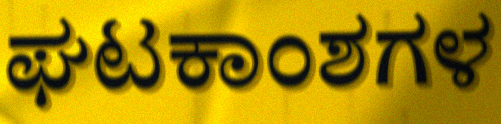
ಘಟಕಾಂಶಗಳ